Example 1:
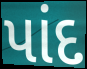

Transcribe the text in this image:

પાંદ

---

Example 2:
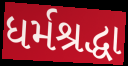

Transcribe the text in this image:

ધર્મશ્રદ્ધા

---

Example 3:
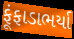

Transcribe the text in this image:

ફૂંફાડાભર્યા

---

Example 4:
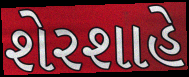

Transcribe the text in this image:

શેરશાહે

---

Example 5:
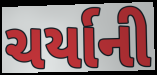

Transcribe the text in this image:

ચર્યાની